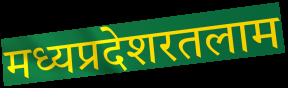
मध्यप्रदेशरतलाम